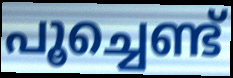
പൂച്ചെണ്ട്